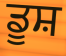
ਡੂਸ਼